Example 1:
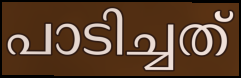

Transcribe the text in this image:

പാടിച്ചത്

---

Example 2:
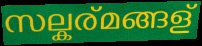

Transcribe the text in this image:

സല്കര്മങ്ങള്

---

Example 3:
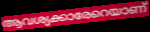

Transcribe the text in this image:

ആവശ്യക്കാരേറെയാണ്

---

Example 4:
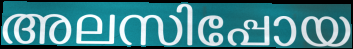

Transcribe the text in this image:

അലസിപ്പോയ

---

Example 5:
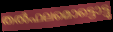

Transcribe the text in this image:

തൽഫലമൊട്ടൊട്ടു